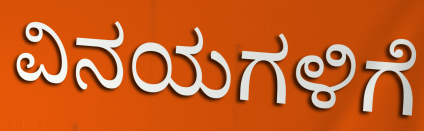
ವಿನಯಗಳಿಗೆ